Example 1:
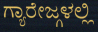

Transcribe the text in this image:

ಗ್ಯಾರೇಜ್ಗಳಲ್ಲಿ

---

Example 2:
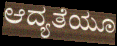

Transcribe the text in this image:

ಆದ್ಯತೆಯೂ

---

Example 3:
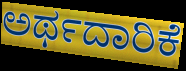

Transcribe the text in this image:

ಅರ್ಥದಾರಿಕೆ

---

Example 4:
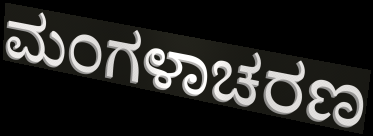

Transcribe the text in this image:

ಮಂಗಳಾಚರಣ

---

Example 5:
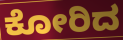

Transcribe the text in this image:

ಕೋರಿದ